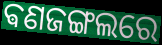
ଵଣଜଙ୍ଗଲରେ